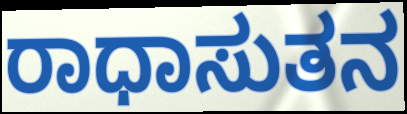
ರಾಧಾಸುತನ